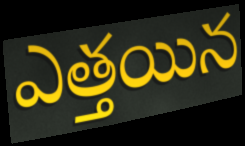
ఎత్తయిన